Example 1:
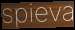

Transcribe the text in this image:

spieva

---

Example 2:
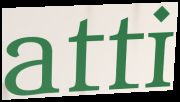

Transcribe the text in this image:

atti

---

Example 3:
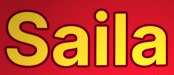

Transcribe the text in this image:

Saila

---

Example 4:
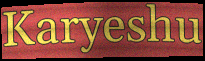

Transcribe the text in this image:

Karyeshu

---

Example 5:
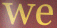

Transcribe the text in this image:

we